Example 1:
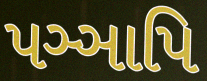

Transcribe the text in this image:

પઞ્ઞાપિ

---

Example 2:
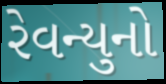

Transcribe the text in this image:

રેવન્યુનો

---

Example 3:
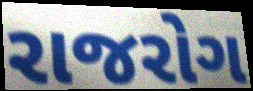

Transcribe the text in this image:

રાજરોગ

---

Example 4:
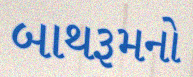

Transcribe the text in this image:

બાથરૂમનો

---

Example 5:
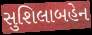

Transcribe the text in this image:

સુશિલાબહેન